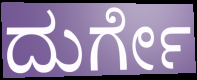
ದುರ್ಗೇ